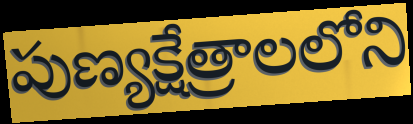
పుణ్యక్షేత్రాలలోని